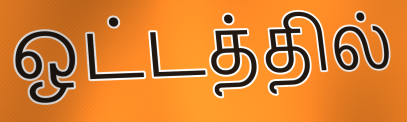
ஒட்டத்தில்